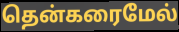
தென்கரைமேல்